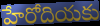
హేరోదియకు